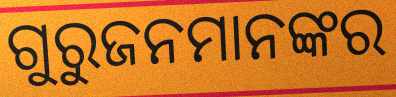
ଗୁରୁଜନମାନଙ୍କର